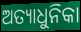
ଅତ୍ୟାଧୁନିକା